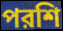
পরশি